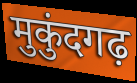
मुकुंदगढ़